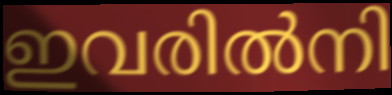
ഇവരിൽനി